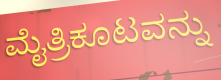
ಮೈತ್ರಿಕೂಟವನ್ನು